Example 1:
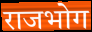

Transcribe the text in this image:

राजभोग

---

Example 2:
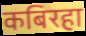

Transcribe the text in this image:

कबिरहा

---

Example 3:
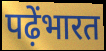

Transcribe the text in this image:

पढ़ेंभारत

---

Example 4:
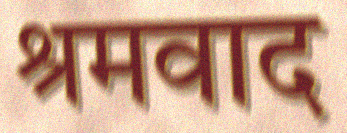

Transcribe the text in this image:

श्रमवाद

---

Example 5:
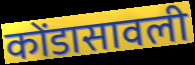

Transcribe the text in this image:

कोंडासावली